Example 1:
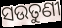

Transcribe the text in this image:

ସଉତୁଣୀ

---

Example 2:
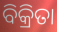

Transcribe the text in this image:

ବିକ୍ରିତା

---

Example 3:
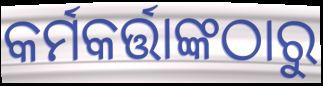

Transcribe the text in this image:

କର୍ମକର୍ତ୍ତାଙ୍କଠାରୁ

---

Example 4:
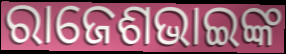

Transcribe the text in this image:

ରାଜେଶଭାଇଙ୍କ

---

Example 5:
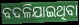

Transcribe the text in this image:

ବଦଳିଯାଇଥିବା